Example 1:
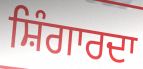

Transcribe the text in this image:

ਸ਼ਿੰਗਾਰਦਾ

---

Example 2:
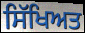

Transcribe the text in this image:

ਸਿੱਖਿਅਤ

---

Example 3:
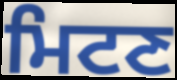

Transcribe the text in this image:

ਮਿਟਣ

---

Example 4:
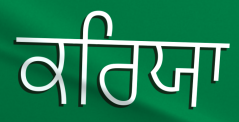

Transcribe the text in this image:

ਕਰਿਯਾ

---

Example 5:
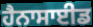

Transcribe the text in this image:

ਹੈਨਾਸਾਈਡ